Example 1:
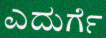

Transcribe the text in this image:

ಎದುರ್ಗೆ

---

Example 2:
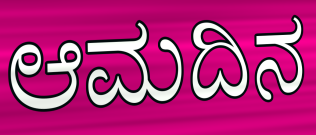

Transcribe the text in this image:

ಆಮದಿನ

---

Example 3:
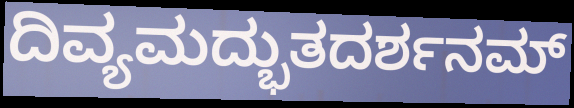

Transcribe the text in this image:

ದಿವ್ಯಮದ್ಭುತದರ್ಶನಮ್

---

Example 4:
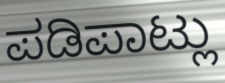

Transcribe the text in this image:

ಪಡಿಪಾಟ್ಲು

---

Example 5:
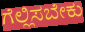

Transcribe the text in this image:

ಗೆಲ್ಲಿಸಬೇಕು